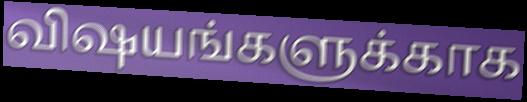
விஷயங்களுக்காக